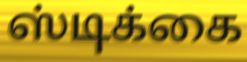
ஸ்டிக்கை